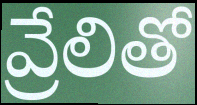
వ్రేలితో